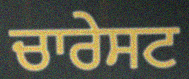
ਚਾਰੇਸਟ